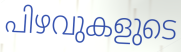
പിഴവുകളുടെ